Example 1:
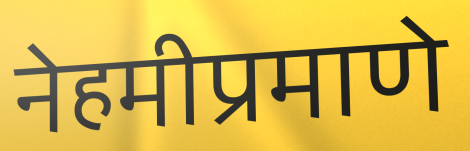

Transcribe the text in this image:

नेहमीप्रमाणे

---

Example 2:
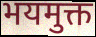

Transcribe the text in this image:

भयमुक्त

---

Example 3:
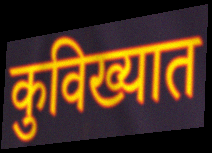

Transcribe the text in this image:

कुविख्यात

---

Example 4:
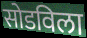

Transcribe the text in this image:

सोडविला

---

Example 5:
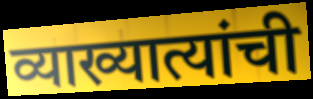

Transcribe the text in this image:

व्याख्यात्यांची